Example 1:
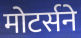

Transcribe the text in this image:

मोटर्सने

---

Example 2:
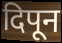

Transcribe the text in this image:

दिपून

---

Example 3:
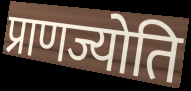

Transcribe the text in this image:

प्राणज्योति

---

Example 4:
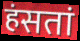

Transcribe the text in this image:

हंसतां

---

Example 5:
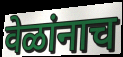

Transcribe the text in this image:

वेळांनाच